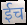
ईच